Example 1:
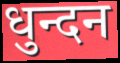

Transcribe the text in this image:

धुन्दन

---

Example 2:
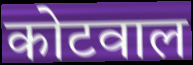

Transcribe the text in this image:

कोटवाल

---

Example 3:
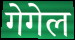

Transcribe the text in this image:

गेगेल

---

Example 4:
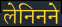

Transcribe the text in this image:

लेनिनने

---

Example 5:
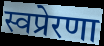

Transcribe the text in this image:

स्वप्रेरणा